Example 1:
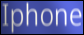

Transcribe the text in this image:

Iphone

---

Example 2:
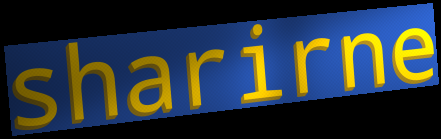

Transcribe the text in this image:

sharirne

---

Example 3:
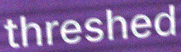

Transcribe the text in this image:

threshed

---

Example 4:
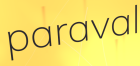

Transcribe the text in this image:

paraval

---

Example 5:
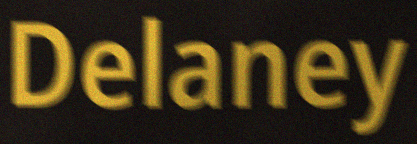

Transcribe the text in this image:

Delaney